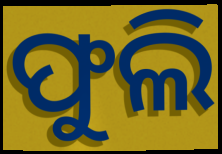
ଫୁଲି